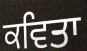
ਕਵਿਤਾ